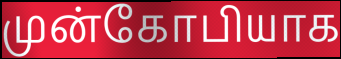
முன்கோபியாக